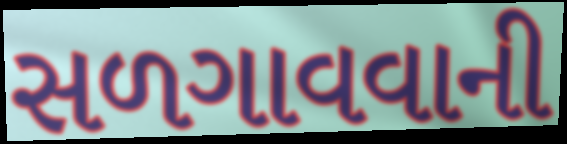
સળગાવવાની